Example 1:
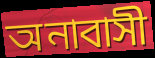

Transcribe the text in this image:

অনাবাসী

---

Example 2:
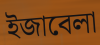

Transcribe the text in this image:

ইজাবেলা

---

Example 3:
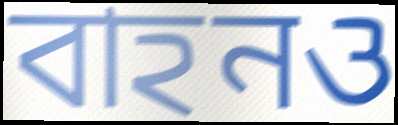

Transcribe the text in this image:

বাহনও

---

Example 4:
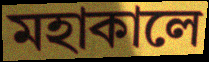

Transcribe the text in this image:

মহাকালে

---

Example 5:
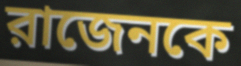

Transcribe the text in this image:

রাজেনকে